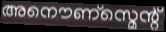
അനൌണ്സ്മെന്റ്